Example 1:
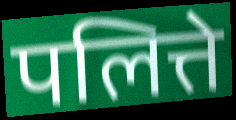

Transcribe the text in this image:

पलित्ते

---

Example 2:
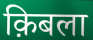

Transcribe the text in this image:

क़िबला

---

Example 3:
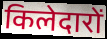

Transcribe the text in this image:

किलेदारों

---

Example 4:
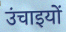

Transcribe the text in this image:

उंचाइयों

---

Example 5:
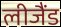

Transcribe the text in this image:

लीजैंड